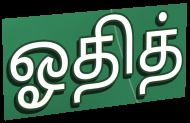
ஓதித்